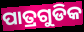
ପାତ୍ରଗୁଡିକ